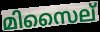
മിസൈല്